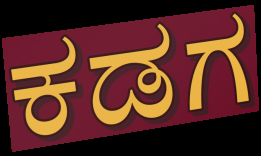
ಕಡಗ